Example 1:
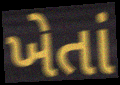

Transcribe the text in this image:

ખેતાં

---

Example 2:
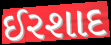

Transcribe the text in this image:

ઈરશાદ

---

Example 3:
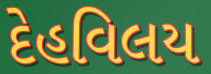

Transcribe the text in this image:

દેહવિલય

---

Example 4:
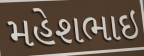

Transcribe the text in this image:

મહેશભાઇ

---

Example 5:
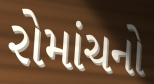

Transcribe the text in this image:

રોમાંચનો